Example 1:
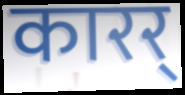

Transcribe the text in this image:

कारर्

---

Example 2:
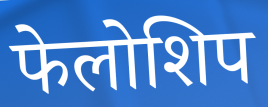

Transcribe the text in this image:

फेलोशिप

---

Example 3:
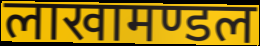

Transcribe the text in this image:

लाखामण्डल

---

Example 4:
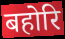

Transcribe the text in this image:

बहोरि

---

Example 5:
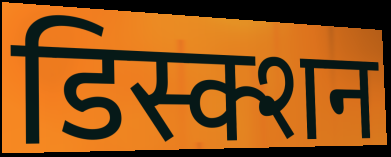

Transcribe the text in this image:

डिस्क्शन